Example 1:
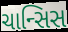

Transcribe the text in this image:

ચાન્સિસ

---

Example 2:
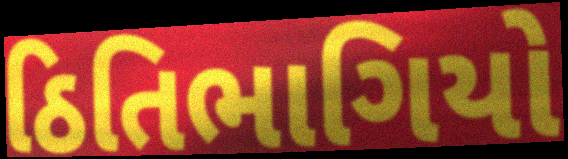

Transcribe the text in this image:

ઠિતિભાગિયો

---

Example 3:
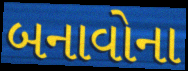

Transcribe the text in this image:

બનાવોના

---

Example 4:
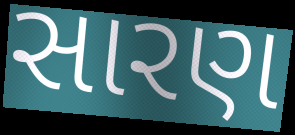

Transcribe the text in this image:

સારણ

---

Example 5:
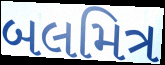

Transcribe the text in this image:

બલમિત્ર